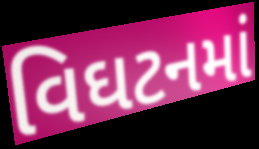
વિઘટનમાં